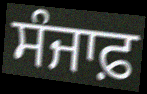
ਸੰਜਾਫ਼